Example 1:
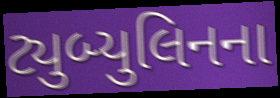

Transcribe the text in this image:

ટ્યુબ્યુલિનના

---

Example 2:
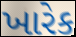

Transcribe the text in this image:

ખારેક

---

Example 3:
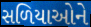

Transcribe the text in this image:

સળિયાઓને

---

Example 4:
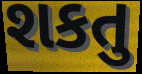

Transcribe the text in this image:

શકતુ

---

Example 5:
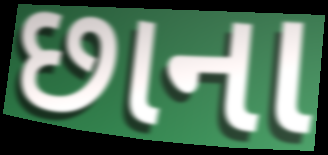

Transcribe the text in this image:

છાના